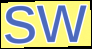
sw